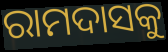
ରାମଦାସକୁ